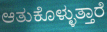
ಆತುಕೊಳ್ಳುತ್ತಾರೆ